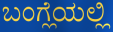
ಬಂಗ್ಲೆಯಲ್ಲಿ